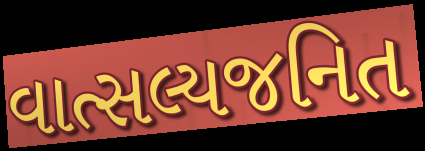
વાત્સલ્યજનિત